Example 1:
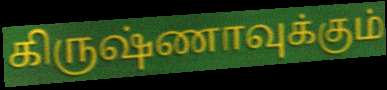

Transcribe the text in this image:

கிருஷ்ணாவுக்கும்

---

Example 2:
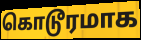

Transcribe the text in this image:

கொடூரமாக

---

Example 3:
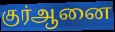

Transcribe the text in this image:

குர்ஆனை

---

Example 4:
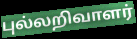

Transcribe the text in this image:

புல்லறிவாளர்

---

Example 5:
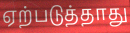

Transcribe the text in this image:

ஏற்படுத்தாது